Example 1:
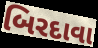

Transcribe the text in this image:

બિરદાવા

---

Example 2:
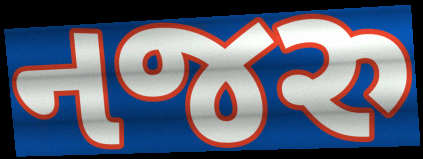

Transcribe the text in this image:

નજરુ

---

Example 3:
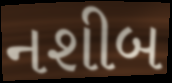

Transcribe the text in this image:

નશીબ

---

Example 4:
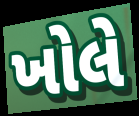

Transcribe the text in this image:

ખોલે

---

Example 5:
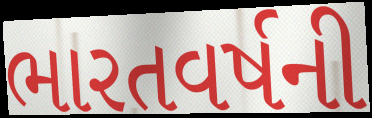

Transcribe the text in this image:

ભારતવર્ષની